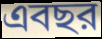
এবছর